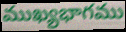
ముఖ్యభాగము